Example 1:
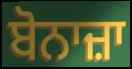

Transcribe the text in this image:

ਬੋਨਾਜ਼ਾ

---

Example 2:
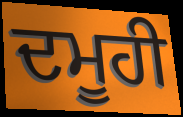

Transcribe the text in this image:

ਦਮੂਹੀ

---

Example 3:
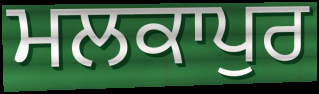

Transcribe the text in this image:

ਮਲਕਾਪੁਰ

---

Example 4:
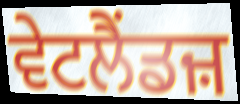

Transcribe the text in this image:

ਵੇਟਲੈਂਡਜ਼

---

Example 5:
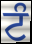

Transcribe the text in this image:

ਟੰ